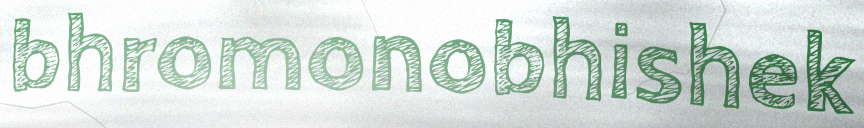
bhromonobhishek